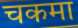
चकमा